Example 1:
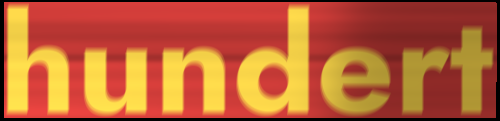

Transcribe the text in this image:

hundert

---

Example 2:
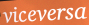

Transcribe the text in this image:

viceversa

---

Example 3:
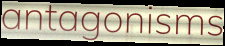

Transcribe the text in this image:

antagonisms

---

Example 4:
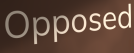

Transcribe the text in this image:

Opposed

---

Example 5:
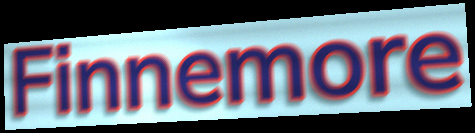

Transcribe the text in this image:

Finnemore